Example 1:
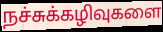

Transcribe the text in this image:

நச்சுக்கழிவுகளை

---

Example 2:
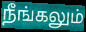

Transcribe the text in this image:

நீங்கலும்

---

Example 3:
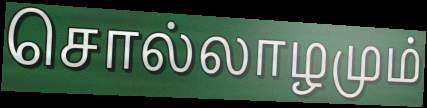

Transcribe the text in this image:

சொல்லாழமும்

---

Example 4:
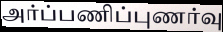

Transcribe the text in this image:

அர்ப்பணிப்புணர்வு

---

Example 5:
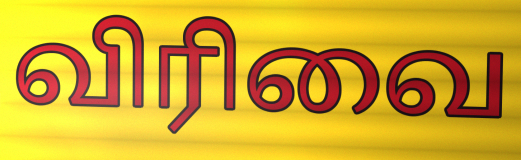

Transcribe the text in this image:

விரிவை